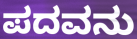
ಪದವನು